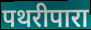
पथरीपारा